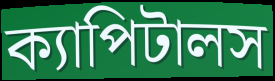
ক্যাপিটালস